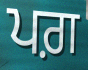
ਪਗ਼